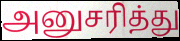
அனுசரித்து